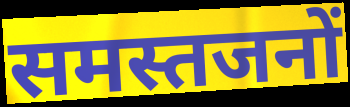
समस्तजनों